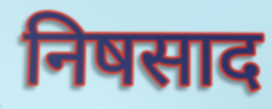
निषसाद